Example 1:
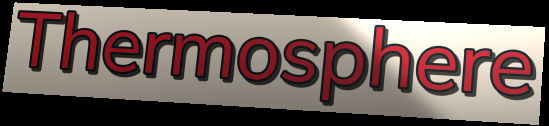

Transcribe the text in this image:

Thermosphere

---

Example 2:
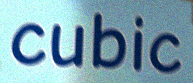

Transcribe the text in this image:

cubic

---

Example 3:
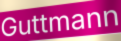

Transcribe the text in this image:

Guttmann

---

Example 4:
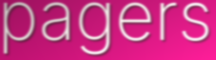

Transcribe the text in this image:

pagers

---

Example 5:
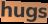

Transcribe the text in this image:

hugs